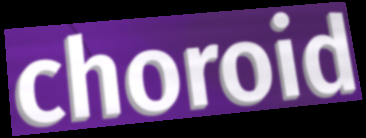
choroid